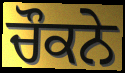
ਚੌਕਨੇ